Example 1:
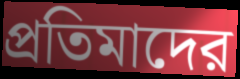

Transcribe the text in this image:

প্রতিমাদের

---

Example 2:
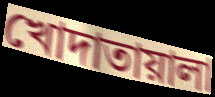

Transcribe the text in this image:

খোদাতায়ালা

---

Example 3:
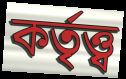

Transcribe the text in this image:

কর্তৃত্ত্ব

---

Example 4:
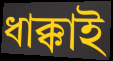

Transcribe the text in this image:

ধাক্কাই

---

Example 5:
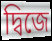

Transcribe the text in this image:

দ্বিজে